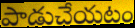
పాడుచేయటం